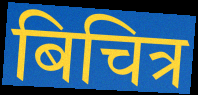
बिचित्र